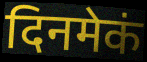
दिनमेकं